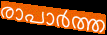
രാപാർത്ത